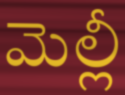
మెల్లీ